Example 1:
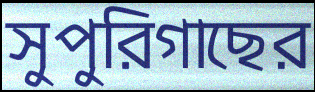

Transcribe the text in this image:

সুপুরিগাছের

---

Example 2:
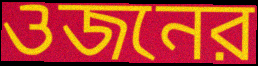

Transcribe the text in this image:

ওজনের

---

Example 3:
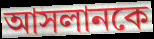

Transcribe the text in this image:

আসলানকে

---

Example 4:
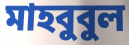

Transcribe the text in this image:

মাহবুবুল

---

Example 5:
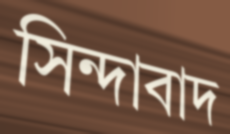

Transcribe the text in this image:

সিন্দাবাদ